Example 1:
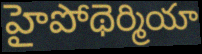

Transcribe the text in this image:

హైపోథెర్మియా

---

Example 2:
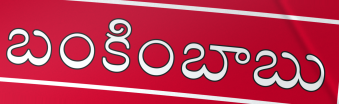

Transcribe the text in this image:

బంకింబాబు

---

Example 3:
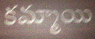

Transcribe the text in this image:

కమ్మాయి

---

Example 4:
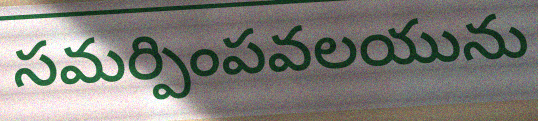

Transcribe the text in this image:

సమర్పింపవలయును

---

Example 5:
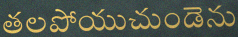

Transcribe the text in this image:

తలపోయుచుండెను